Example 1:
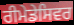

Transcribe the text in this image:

ਰੀਮੇਡੇਸਿਵਰ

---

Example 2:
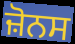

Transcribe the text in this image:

ਜ਼ੋਨਸ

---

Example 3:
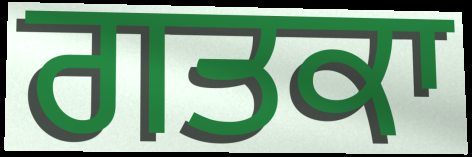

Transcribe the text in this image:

ਗਤਕਾ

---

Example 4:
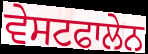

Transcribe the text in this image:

ਵੇਸਟਫਾਲੇਨ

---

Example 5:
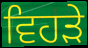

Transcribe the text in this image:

ਵਿਹੜੇ